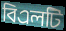
বিএলটি